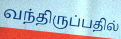
வந்திருப்பதில்